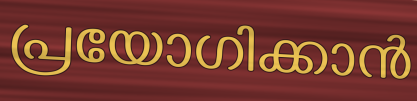
പ്രയോഗിക്കാൻ